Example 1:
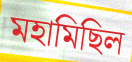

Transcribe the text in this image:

মহামিছিল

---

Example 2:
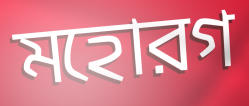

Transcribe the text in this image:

মহোরগ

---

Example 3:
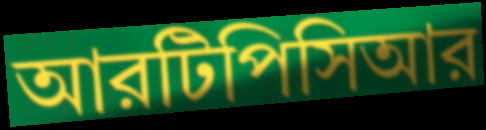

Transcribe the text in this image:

আরটিপিসিআর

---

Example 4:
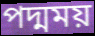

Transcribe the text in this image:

পদ্মময়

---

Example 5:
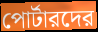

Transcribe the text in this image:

পোর্টারদের